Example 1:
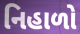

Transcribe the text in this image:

નિહાળો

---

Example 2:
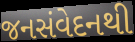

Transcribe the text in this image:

જનસંવેદનથી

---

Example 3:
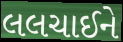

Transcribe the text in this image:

લલચાઈને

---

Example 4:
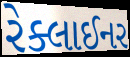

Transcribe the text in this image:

રેક્લાઈનર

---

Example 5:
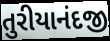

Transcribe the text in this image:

તુરીયાનંદજી